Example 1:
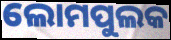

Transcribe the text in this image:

ଲୋମପୁଲକ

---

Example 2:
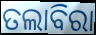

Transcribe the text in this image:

ତଲାବିରା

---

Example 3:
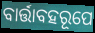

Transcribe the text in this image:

ବାର୍ତ୍ତାବହରୂପେ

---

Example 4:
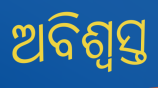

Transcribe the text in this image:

ଅବିଶ୍ୱସ୍ତ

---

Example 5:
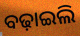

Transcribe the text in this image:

ବଢ଼ାଇଲି